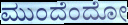
ಮುಂದೆಂದೋ